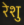
रेशु